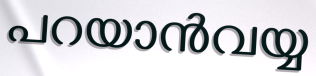
പറയാൻവയ്യ